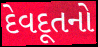
દેવદૂતનો